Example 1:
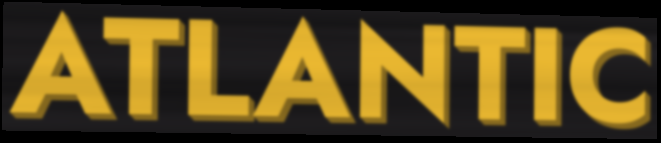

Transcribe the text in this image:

ATLANTIC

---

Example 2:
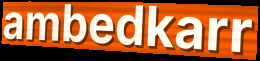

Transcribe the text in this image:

ambedkarr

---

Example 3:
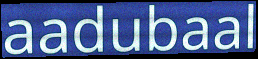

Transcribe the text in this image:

aadubaal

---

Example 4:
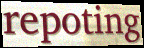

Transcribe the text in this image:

repoting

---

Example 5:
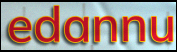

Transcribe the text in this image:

edannu